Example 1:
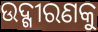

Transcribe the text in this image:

ଉଦ୍ଗୀରଣକୁ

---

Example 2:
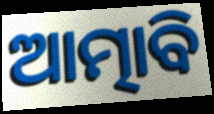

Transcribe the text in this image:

ଆତ୍ମାବି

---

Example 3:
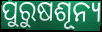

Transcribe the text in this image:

ପୁରୁଷଶୂନ୍ୟ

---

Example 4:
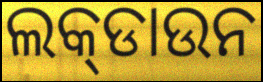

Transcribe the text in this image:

ଲକ୍‌ଡାଉନ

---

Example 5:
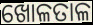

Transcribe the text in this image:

ଖୋଳତାଳ